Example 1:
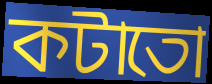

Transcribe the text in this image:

কটাতো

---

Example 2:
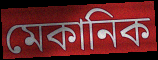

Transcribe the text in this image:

মেকানিক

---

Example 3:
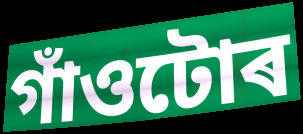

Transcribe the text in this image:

গাঁওটোৰ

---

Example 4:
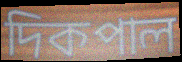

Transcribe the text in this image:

দিকপাল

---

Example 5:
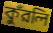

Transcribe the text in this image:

কুঁৱলি